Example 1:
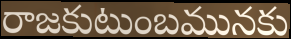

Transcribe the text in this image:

రాజకుటుంబమునకు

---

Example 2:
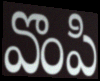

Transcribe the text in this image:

వొంపి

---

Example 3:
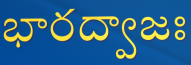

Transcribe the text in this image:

భారద్వాజః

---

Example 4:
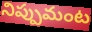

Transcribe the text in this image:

నిప్పుమంట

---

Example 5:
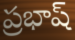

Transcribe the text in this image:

ప్రభాష్